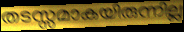
തടസ്സമാകയിരുന്നില്ല